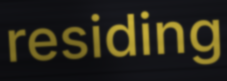
residing